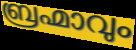
ബ്രഹ്മാവും